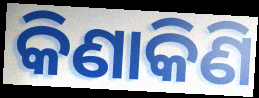
କିଣାକିଣି